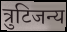
त्रुटिजन्य